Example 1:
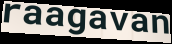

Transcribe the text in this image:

raagavan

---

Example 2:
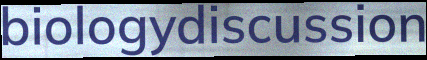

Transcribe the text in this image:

biologydiscussion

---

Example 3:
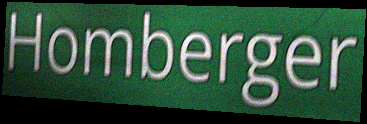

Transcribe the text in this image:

Homberger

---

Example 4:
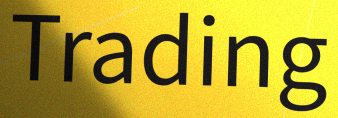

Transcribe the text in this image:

Trading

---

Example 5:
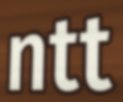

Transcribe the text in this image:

ntt